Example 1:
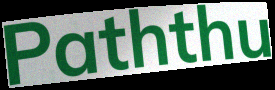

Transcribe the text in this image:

Paththu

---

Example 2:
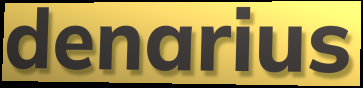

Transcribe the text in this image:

denarius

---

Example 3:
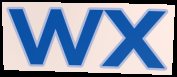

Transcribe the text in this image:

wx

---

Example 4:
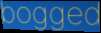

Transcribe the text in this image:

bogged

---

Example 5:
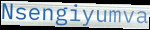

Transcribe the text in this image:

Nsengiyumva